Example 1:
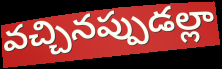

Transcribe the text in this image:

వచ్చినప్పుడల్లా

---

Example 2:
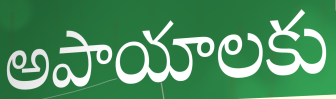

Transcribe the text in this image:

అపాయాలకు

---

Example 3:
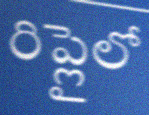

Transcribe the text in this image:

రిప్లైలో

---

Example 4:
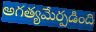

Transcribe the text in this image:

అగత్యమేర్పడింది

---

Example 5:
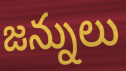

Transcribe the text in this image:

జన్నులు